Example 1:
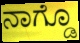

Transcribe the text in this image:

ನಾಗ್ಡೊ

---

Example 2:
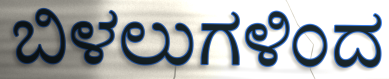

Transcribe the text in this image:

ಬಿಳಲುಗಳಿಂದ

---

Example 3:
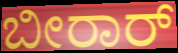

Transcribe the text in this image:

ಬೀರಾರ್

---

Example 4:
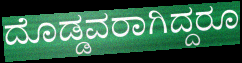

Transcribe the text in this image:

ದೊಡ್ಡವರಾಗಿದ್ದರೂ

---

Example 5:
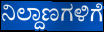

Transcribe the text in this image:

ನಿಲ್ದಾಣಗಳಿಗೆ